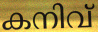
കനിവ്